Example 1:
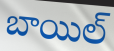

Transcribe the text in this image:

బాయిల్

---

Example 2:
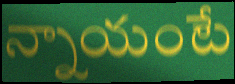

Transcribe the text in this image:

న్నాయంటే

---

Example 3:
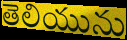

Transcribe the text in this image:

తెలియును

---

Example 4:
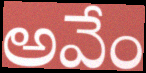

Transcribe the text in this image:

అవేం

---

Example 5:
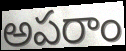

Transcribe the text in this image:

అపరాం